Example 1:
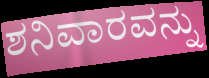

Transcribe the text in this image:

ಶನಿವಾರವನ್ನು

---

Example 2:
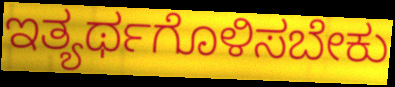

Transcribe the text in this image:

ಇತ್ಯರ್ಥಗೊಳಿಸಬೇಕು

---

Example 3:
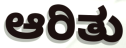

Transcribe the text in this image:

ಆರಿತು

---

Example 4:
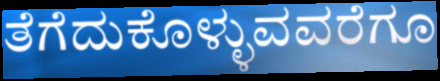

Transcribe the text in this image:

ತೆಗೆದುಕೊಳ್ಳುವವರೆಗೂ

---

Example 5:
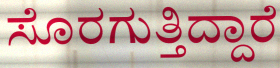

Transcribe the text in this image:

ಸೊರಗುತ್ತಿದ್ದಾರೆ